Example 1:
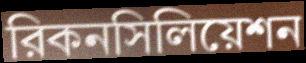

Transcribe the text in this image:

রিকনসিলিয়েশন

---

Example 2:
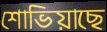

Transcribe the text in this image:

শোভিয়াছে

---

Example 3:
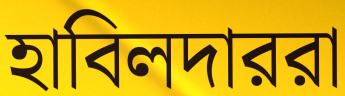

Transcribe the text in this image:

হাবিলদাররা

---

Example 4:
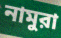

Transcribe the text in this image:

নামুরা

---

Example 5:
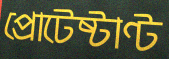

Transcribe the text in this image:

প্রোটেষ্টাণ্ট